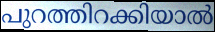
പുറത്തിറക്കിയാൽ